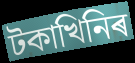
টকাখিনিৰ